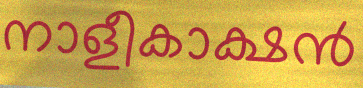
നാളീകാക്ഷൻ